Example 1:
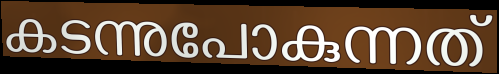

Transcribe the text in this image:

കടന്നുപോകുന്നത്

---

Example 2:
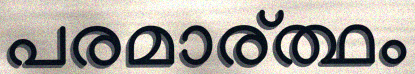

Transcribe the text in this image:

പരമാര്ത്ഥം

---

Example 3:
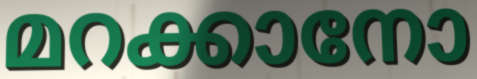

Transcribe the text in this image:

മറക്കാനോ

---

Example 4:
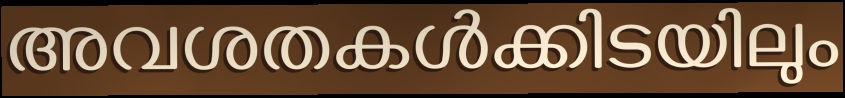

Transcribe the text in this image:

അവശതകൾക്കിടയിലും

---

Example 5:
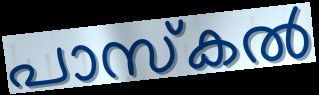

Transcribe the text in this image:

പാസ്കൽ